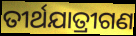
ତୀର୍ଥଯାତ୍ରୀଗଣ